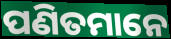
ପଣିତମାନେ